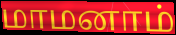
மாமனாம்